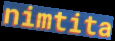
nimtita